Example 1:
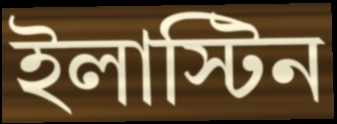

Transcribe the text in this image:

ইলাস্টিন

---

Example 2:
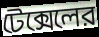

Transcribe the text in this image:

টেক্সেলের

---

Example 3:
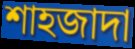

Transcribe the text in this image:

শাহজাদা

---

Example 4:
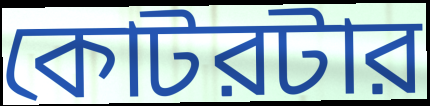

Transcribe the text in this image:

কোটরটার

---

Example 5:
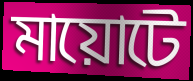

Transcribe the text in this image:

মায়োটে